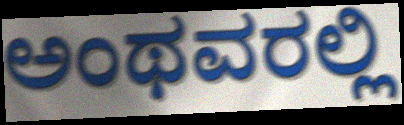
ಅಂಥವರಲ್ಲಿ